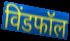
विंडफॉल